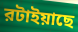
রটাইয়াছে